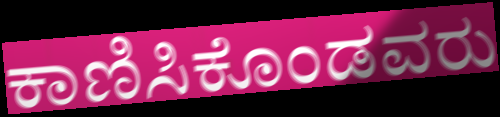
ಕಾಣಿಸಿಕೊಂಡವರು